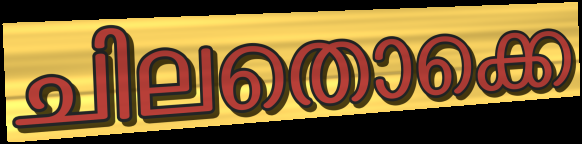
ചിലതൊക്കെ